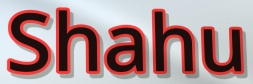
Shahu